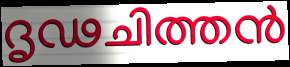
ദൃഢചിത്തൻ